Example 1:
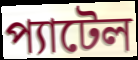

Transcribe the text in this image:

প্যাটেল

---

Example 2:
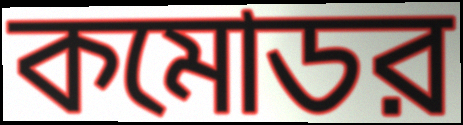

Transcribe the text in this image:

কমোডর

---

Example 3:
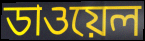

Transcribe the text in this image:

ডাওয়েল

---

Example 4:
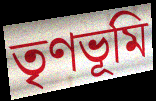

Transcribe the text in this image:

তৃণভূমি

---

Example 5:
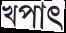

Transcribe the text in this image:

খপাৎ